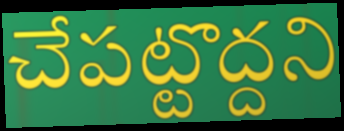
చేపట్టొద్దని